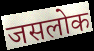
जसलोक